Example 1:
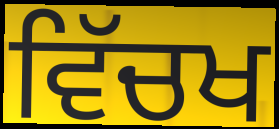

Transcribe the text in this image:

ਵਿੱਚਖ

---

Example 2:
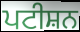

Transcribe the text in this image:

ਪਟੀਸ਼ਨ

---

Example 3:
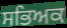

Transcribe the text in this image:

ਸਭਿਅਕ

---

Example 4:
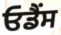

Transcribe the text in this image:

ਓਡੈਂਸ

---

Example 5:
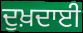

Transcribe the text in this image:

ਦੁਖ਼ਦਾਈ